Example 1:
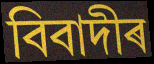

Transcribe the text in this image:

বিবাদীৰ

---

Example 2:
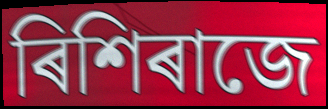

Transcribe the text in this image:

ৰিশিৰাজে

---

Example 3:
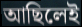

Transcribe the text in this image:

আছিলেই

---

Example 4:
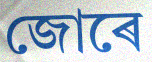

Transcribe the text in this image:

জোৰে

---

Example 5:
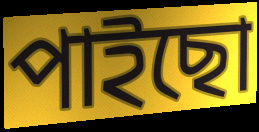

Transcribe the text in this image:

পাইছো